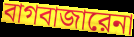
বাগবাজারেনা